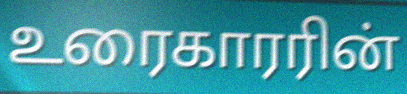
உரைகாரரின்